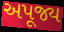
અપૂજ્ય